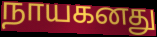
நாயகனது